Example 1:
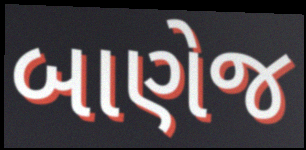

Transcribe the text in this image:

બાણેજ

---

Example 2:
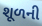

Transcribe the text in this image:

શૂળની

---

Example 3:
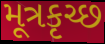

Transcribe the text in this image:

મૂત્રકૃચ્છ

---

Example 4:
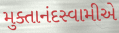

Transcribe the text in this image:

મુક્તાનંદસ્વામીએ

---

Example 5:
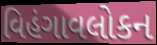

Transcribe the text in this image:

વિહંગાવલોકન